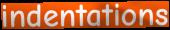
indentations